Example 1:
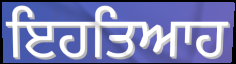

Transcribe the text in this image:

ਇਹਤਿਆਹ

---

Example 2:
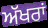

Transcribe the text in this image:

ਅੱਖਰਾਂ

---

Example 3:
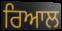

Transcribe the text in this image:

ਰਿਆਲ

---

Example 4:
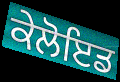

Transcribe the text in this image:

ਕੇਲੋਇਡ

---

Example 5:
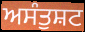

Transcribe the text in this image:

ਅਸੰਤੁਸ਼ਟ